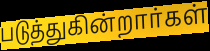
படுத்துகின்றார்கள்